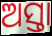
ଅସ୍ତା